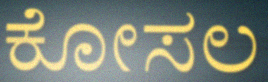
ಕೋಸಲ